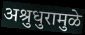
अश्रुधुरामुळे